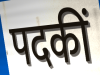
पदकीं